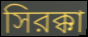
সিরক্কা